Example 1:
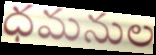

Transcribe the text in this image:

ధమనుల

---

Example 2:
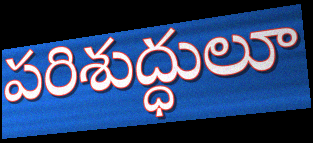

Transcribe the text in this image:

పరిశుద్ధులూ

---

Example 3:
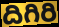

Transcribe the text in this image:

దిగిరి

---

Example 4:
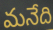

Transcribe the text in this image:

మనేది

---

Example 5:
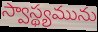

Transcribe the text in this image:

స్వాస్థ్యమును